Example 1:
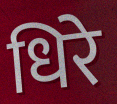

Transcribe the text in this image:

धिरे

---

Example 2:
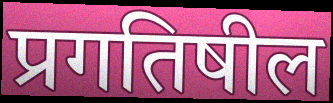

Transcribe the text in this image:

प्रगतिषील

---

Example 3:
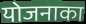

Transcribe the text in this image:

योजनाका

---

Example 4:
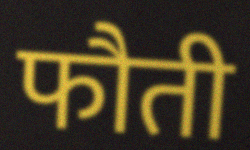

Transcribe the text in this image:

फौती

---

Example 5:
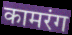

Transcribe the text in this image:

कामरंग